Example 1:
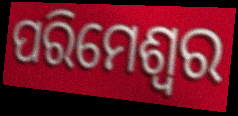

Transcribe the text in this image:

ପରିମେଶ୍ୱର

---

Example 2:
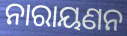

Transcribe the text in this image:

ନାରାୟଣନ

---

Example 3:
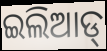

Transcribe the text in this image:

ଇଲିଆଡ୍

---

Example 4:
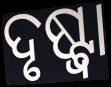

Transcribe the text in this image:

ଦୃଷ୍ଟ୍ବା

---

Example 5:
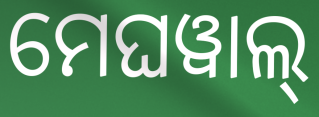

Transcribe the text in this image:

ମେଘୱାଲ୍